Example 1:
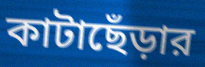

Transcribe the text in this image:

কাটাছেঁড়ার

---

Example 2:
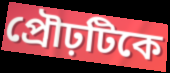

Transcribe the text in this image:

প্রৌঢ়টিকে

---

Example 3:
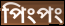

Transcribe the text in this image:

পিংপং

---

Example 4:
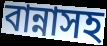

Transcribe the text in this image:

বান্নাসহ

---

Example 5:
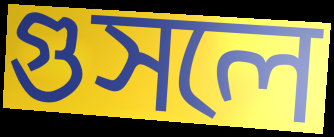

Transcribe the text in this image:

গুসলে